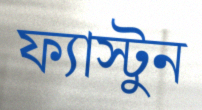
ফ্যাস্টুন